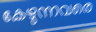
കേഴുന്നവരെ